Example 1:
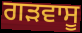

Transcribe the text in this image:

ਗੜਵਾਸੂ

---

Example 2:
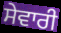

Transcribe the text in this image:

ਸੇਵਾਰੀ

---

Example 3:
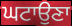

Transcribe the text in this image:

ਘਟਾਉਣਾ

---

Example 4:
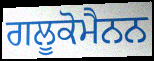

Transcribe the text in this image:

ਗਲੂਕੋਮੈਨਨ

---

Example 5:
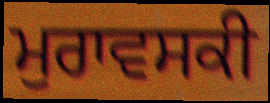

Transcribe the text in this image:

ਮੁਰਾਵਸਕੀ